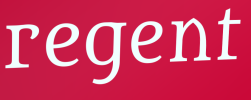
regent